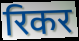
रिकर